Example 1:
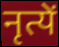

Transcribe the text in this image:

नृत्यें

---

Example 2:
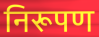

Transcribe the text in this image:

निरूपण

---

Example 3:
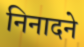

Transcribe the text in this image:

निनादने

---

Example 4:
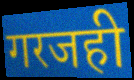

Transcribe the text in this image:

गरजही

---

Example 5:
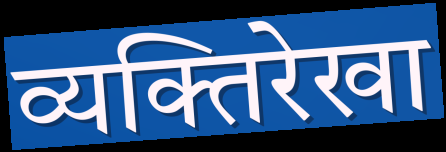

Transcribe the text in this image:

व्यक्तिरेखा